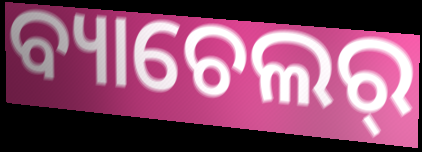
ବ୍ୟାଚେଲର୍